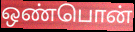
ஒண்பொன்